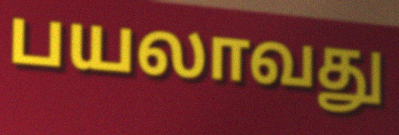
பயலாவது